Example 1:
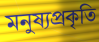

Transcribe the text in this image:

মনুষ্যপ্রকৃতি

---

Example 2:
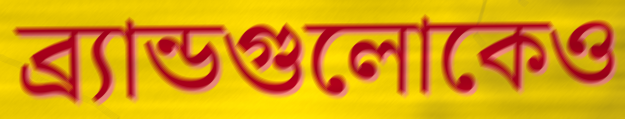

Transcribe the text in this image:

ব্র্যান্ডগুলোকেও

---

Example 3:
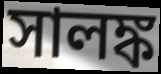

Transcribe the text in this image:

সালঙ্ক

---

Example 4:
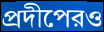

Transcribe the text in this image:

প্রদীপেরও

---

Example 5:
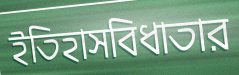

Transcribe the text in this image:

ইতিহাসবিধাতার